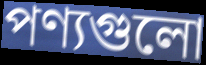
পণ্যগুলো